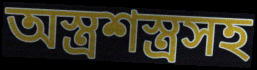
অস্ত্রশস্ত্রসহ